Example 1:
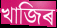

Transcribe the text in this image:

খাজিৰ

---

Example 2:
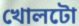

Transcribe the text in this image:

খোলটো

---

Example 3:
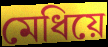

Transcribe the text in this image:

মেধিয়ে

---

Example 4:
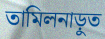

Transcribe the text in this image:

তামিলনাড়ুত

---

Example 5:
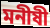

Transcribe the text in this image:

মনীষী